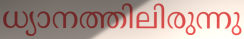
ധ്യാനത്തിലിരുന്നു